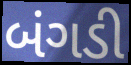
બંગડી